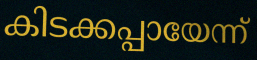
കിടക്കപ്പായേന്ന്